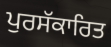
ਪੁਰਸੱਕਾਰਿਤ